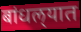
बांधल्यात